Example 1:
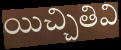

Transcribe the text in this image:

యిచ్చితివి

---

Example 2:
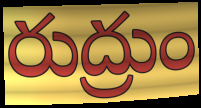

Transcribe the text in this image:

రుద్రుం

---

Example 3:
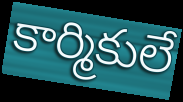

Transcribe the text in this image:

కార్మికులే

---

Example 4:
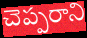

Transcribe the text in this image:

చెప్పరాని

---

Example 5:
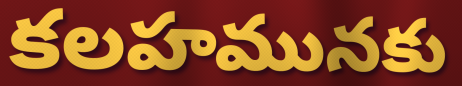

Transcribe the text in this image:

కలహమునకు